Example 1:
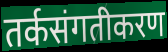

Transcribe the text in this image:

तर्कसंगतीकरण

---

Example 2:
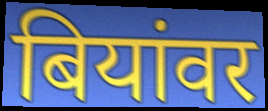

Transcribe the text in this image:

बियांवर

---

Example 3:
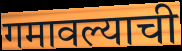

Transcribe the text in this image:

गमावल्याची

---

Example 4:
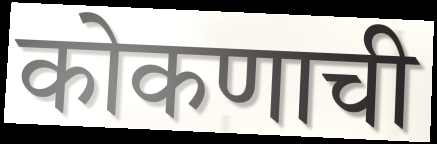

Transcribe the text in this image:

कोकणाची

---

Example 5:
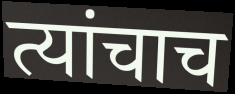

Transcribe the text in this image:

त्यांचाच